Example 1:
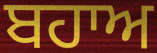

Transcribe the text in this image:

ਬਹਾਅ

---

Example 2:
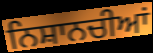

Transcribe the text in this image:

ਨਿਸ਼ਾਨਚੀਆਂ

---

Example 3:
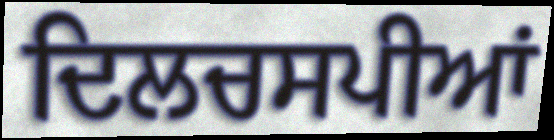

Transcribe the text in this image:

ਦਿਲਚਸਪੀਆਂ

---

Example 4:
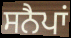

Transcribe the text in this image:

ਸਨੈਪਾਂ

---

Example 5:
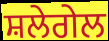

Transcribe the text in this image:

ਸ਼ਲੇਗੇਲ